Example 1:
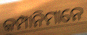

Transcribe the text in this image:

କମ୍ପାନିମାନେ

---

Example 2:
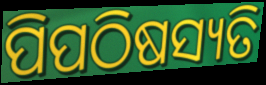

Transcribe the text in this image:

ପିପଠିଷସ୍ଯତି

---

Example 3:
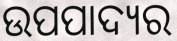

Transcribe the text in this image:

ଉପପାଦ୍ୟର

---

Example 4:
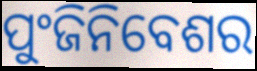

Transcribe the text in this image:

ପୁଂଜିନିବେଶର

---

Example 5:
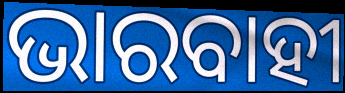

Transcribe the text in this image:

ଭାରବାହୀ